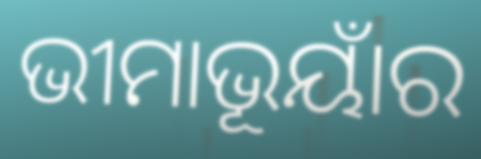
ଭୀମାଭୂୟାଁର